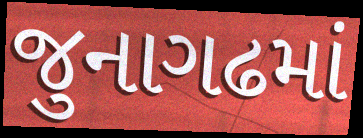
જુનાગઢમાં